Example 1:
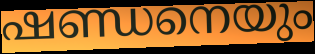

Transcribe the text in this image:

ഷണ്ഡനെയും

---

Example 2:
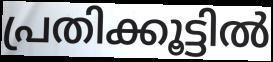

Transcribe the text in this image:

പ്രതിക്കൂട്ടിൽ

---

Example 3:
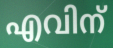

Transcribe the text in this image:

എവിന്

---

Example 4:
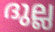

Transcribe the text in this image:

ദുല്ല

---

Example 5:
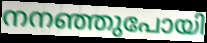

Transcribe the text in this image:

നനഞ്ഞുപോയി